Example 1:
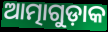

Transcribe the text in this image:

ଆତ୍ମାଗୁଡ଼ାକ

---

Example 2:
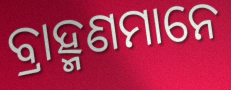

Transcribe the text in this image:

ବ୍ରାହ୍ମଣମାନେ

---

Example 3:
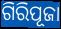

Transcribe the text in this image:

ଗିରିପୂଜା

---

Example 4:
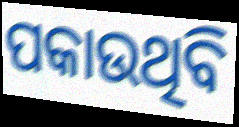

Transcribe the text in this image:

ପକାଉଥିବି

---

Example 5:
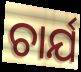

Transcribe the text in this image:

ଚାର୍ଯ